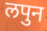
लपुन